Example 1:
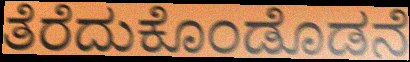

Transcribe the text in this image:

ತೆರೆದುಕೊಂಡೊಡನೆ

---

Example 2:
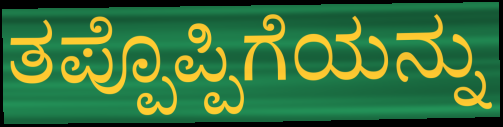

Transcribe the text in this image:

ತಪ್ಪೊಪ್ಪಿಗೆಯನ್ನು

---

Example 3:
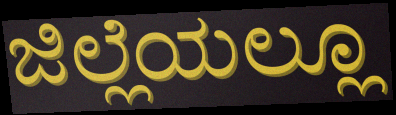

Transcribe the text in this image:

ಜಿಲ್ಲೆಯಲ್ಲೂ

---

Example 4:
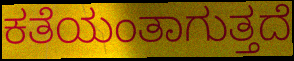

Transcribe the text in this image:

ಕತೆಯಂತಾಗುತ್ತದೆ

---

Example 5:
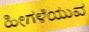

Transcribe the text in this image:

ಹೀಗಳೆಯುವ